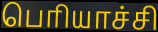
பெரியாச்சி